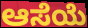
ಆಸೆಯೆ